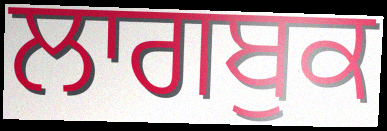
ਲਾਗਬੁਕ